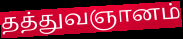
தத்துவஞானம்